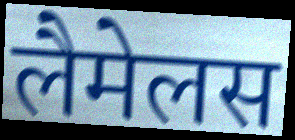
लैमेलस